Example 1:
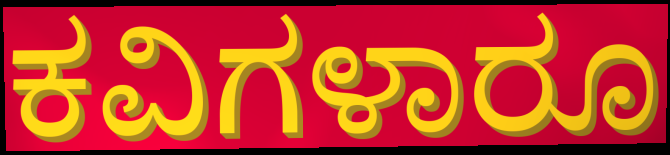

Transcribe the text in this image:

ಕವಿಗಳಾರೂ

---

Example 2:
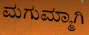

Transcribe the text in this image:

ಮಗುಮ್ಮಾಗಿ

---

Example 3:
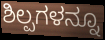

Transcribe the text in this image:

ಶಿಲ್ಪಗಳನ್ನೂ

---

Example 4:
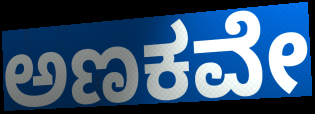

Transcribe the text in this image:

ಅಣಕವೇ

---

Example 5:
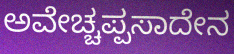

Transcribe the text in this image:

ಅವೇಚ್ಚಪ್ಪಸಾದೇನ